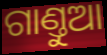
ଗାଣ୍ତୁଆ